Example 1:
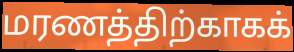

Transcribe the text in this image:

மரணத்திற்காகக்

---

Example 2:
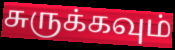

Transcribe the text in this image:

சுருக்கவும்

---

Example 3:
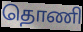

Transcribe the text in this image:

தொணி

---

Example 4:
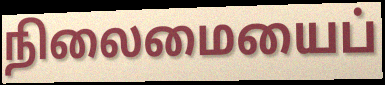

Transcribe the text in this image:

நிலைமையைப்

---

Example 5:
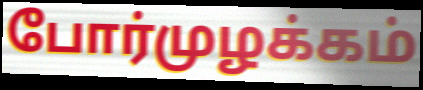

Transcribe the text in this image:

போர்முழக்கம்